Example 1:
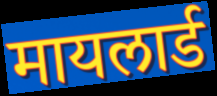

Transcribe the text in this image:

मायलार्ड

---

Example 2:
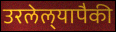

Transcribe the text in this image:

उरलेल्यापैकी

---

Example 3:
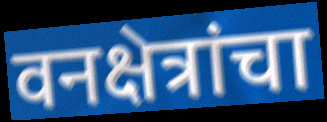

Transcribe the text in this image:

वनक्षेत्रांचा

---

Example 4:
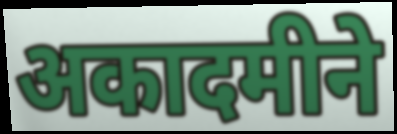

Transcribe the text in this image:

अकादमीने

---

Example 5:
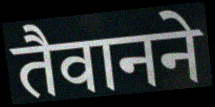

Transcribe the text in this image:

तैवानने